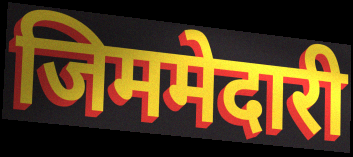
जिममेदारी